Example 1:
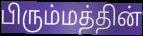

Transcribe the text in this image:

பிரும்மத்தின்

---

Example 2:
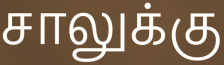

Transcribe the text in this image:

சாலுக்கு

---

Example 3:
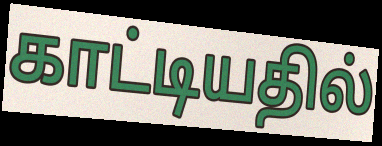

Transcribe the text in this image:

காட்டியதில்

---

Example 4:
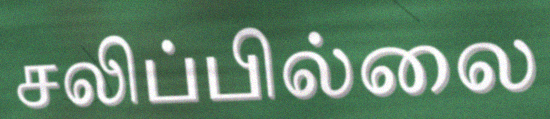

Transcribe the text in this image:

சலிப்பில்லை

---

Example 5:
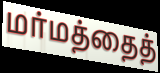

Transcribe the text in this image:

மர்மத்தைத்